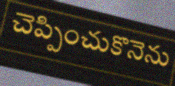
చెప్పించుకొనెను